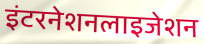
इंटरनेशनलाइजेशन